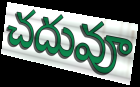
చదువూ